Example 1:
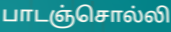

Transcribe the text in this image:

பாடஞ்சொல்லி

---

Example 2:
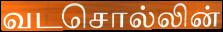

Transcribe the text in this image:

வடசொல்லின்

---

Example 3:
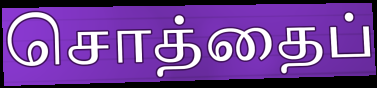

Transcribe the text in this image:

சொத்தைப்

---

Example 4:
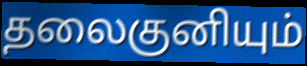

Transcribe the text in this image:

தலைகுனியும்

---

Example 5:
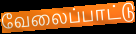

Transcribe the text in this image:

வேலைப்பாட்டு